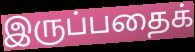
இருப்பதைக்